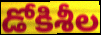
డోకిశీల